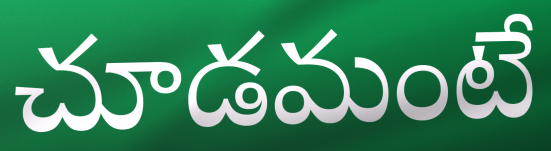
చూడమంటే